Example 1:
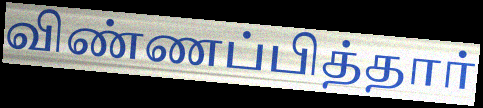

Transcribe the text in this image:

விண்ணப்பித்தார்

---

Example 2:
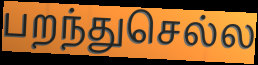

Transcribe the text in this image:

பறந்துசெல்ல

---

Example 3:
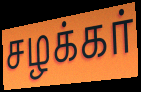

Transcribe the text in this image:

சழக்கர்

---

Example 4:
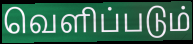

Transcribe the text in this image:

வெளிப்படும்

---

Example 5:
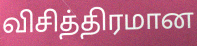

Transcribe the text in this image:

விசித்திரமான